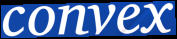
convex